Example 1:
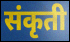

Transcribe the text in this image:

संकृती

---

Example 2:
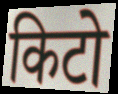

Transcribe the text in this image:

किटो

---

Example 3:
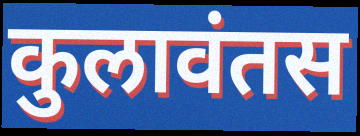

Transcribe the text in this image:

कुलावंतस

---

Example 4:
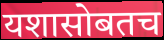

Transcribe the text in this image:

यशासोबतच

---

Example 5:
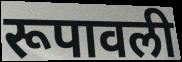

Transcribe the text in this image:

रूपावली